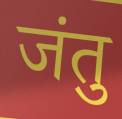
जंतु